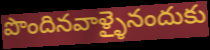
పొందినవాళ్ళైనందుకు